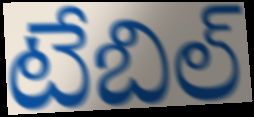
టేబిల్